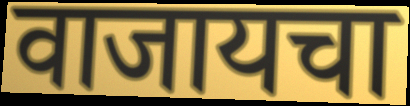
वाजायचा